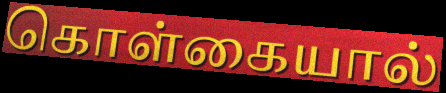
கொள்கையால்